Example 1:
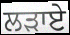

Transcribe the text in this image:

ਲੜਾਏ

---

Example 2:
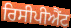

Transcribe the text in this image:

ਰਿਸੀਪੀਐਂਟ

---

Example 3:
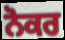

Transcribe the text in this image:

ਨੋਕਰ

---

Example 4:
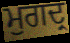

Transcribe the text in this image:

ਮੁਗਦ੍ਰ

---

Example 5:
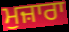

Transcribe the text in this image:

ਮੁਜ਼ਾਰਾ